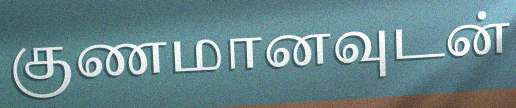
குணமானவுடன்